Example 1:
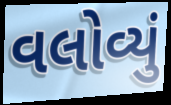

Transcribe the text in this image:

વલોવ્યું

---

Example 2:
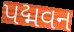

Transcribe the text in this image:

પદ્મવન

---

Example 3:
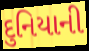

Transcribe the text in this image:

દુનિયાની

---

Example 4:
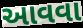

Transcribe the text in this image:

આવવા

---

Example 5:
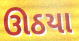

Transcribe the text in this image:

ઊઠયા